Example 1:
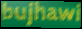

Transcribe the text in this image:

bujhawi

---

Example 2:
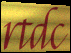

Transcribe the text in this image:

rtdc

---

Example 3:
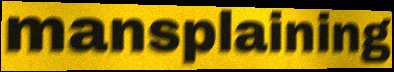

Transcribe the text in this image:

mansplaining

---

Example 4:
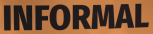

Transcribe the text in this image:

INFORMAL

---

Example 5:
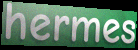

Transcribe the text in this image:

hermes